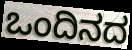
ಒಂದಿನದ